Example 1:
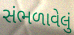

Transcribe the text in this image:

સંભળાવેલું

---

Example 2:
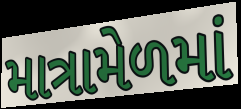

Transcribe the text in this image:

માત્રામેળમાં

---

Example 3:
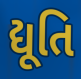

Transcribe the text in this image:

દ્યૂતિ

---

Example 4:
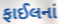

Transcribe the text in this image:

ફાઈલનાં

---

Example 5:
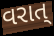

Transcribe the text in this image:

વરાત્